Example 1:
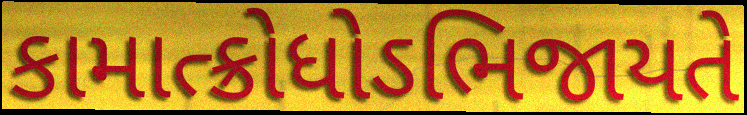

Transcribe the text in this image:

કામાત્ક્રોધોઽભિજાયતે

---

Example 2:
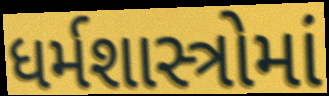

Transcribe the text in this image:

ધર્મશાસ્ત્રોમાં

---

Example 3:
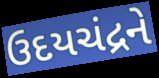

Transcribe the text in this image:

ઉદયચંદ્રને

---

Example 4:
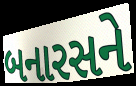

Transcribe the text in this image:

બનારસને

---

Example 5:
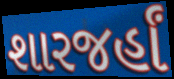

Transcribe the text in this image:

શારજર્હાં